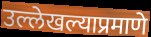
उल्लेखल्याप्रमाणे